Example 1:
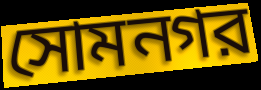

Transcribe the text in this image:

সোমনগর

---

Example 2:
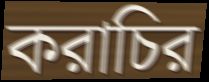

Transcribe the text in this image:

করাচির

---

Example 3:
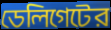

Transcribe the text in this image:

ডেলিগেটের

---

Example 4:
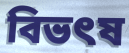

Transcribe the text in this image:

বিভৎষ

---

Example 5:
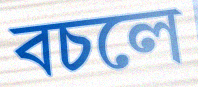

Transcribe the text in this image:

বচলে